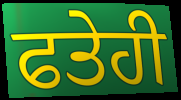
ਫਤੇਹੀ